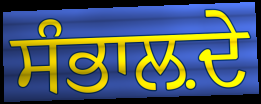
ਸੰਭਾਲ਼ਦੇ